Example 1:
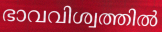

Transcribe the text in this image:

ഭാവവിശ്വത്തിൽ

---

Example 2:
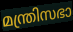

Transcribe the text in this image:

മന്ത്രിസഭാ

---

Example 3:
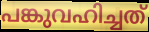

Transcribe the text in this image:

പങ്കുവഹിച്ചത്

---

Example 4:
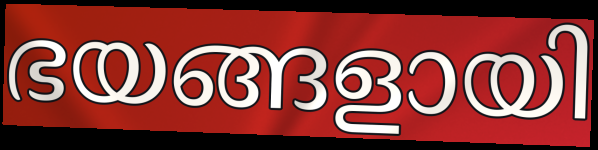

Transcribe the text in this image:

ഭയങ്ങളായി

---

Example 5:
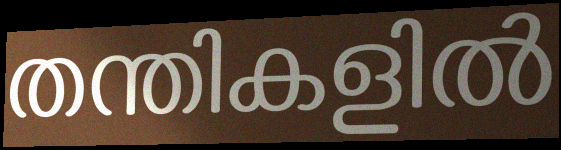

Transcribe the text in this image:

തന്തികളിൽ